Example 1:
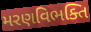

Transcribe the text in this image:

મરણવિભક્તિ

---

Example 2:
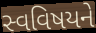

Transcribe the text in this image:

સ્વવિષયને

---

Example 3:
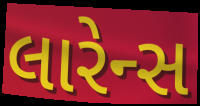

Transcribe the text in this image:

લારેન્સ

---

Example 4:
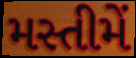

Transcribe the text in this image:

મસ્તીમેં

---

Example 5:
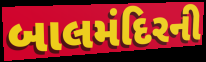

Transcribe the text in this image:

બાલમંદિરની